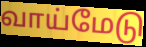
வாய்மேடு